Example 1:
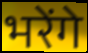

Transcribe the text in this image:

भरेंगे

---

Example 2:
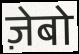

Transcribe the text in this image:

ज़ेबो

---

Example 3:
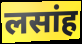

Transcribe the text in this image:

लसांह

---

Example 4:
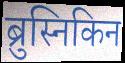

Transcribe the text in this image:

ब्रुस्निकिन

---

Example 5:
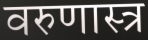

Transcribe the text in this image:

वरुणास्त्र